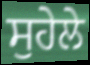
ਸੁਹੇਲੇ